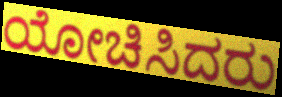
ಯೋಚಿಸಿದರು